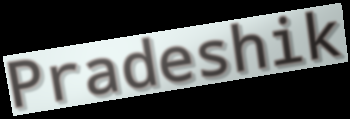
Pradeshik